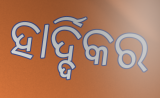
ହାର୍ଦ୍ଦିକର